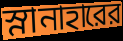
স্নানাহারের